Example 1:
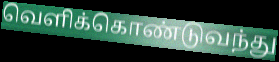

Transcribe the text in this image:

வெளிக்கொண்டுவந்து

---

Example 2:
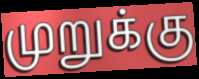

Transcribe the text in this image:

முறுக்கு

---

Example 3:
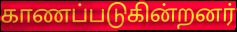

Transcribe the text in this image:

காணப்படுகின்றனர்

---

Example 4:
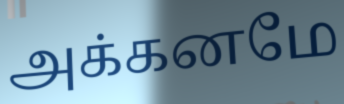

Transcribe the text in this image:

அக்கனமே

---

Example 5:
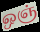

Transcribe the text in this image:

ஒஞ்